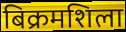
बिक्रमशिला